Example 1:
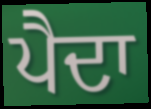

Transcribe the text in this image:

ਪੈਦਾ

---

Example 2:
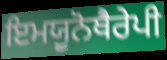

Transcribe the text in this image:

ਇਮਯੂਨੋਥੈਰੇਪੀ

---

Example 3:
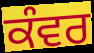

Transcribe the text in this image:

ਕੰਵਰ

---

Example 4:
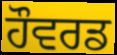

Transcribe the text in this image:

ਹੌਵਰਡ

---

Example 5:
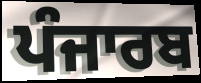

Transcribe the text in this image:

ਪੰਜਾਰਬ